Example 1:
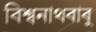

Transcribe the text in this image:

বিশ্বনাথবাবু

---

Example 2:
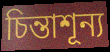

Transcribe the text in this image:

চিন্তাশূন্য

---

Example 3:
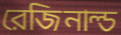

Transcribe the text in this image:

রেজিনাল্ড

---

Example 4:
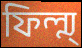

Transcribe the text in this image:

ফিল্ম্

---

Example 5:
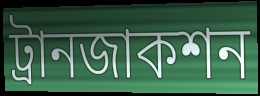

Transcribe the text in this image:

ট্রানজাকশন